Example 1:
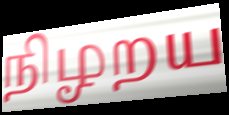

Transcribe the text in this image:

நிழறய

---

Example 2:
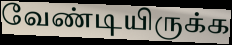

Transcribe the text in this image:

வேண்டியிருக்க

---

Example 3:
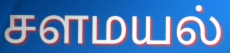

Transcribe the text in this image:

சளமயல்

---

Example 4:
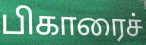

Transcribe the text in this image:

பிகாரைச்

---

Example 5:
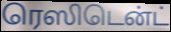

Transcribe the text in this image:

ரெஸிடென்ட்